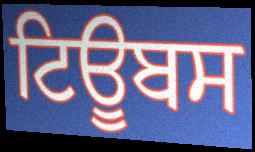
ਟਿਊਬਸ